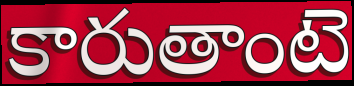
కారుతాంటె